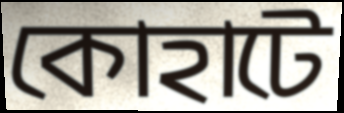
কোহাটে